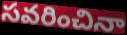
సవరించినా